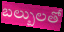
బల్బులతో